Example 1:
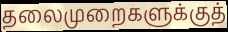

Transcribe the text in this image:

தலைமுறைகளுக்குத்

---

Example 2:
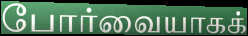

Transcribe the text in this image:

போர்வையாகக்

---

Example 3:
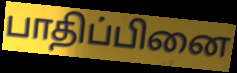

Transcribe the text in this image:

பாதிப்பினை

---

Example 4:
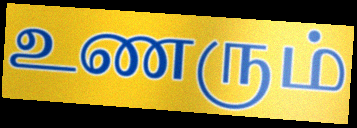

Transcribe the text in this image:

உணரும்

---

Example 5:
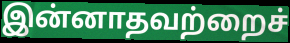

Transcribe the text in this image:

இன்னாதவற்றைச்